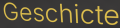
Geschicte